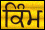
ਕਿੰਮ